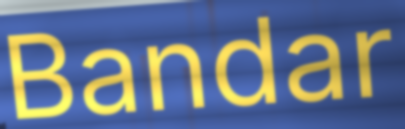
Bandar